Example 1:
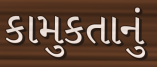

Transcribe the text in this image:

કામુકતાનું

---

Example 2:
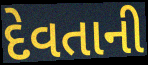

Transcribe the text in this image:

દેવતાની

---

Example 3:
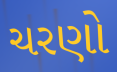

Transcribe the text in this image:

ચરણો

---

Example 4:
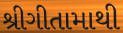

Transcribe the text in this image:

શ્રીગીતામાથી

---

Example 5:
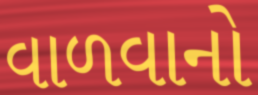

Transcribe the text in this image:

વાળવાનો